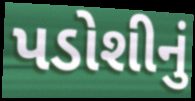
પડોશીનું